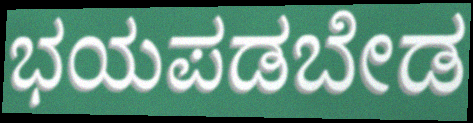
ಭಯಪಡಬೇಡ